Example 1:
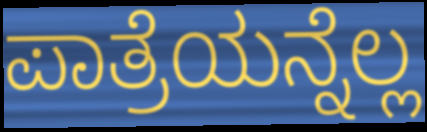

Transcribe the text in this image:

ಪಾತ್ರೆಯನ್ನೆಲ್ಲ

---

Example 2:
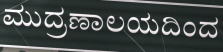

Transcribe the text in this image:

ಮುದ್ರಣಾಲಯದಿಂದ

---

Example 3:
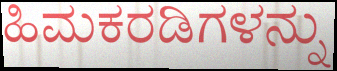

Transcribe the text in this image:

ಹಿಮಕರಡಿಗಳನ್ನು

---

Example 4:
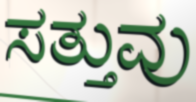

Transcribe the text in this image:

ಸತ್ತುವು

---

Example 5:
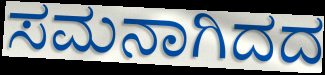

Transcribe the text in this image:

ಸಮನಾಗಿದದ